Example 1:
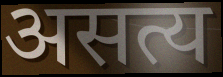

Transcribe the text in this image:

असत्य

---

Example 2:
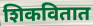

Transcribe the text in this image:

शिकवितात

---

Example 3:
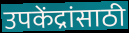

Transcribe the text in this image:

उपकेंद्रांसाठी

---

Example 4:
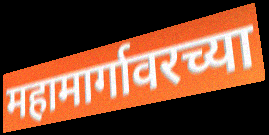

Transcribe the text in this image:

महामार्गावरच्या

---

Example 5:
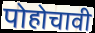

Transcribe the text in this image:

पोहोचावी